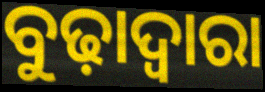
ବୁଢ଼ାଦ୍ୱାରା